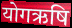
योगऋषि